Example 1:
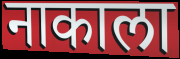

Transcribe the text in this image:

नाकाला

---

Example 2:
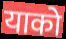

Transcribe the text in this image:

याको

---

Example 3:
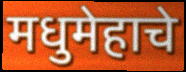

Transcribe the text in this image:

मधुमेहाचे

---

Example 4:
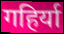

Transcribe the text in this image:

गहिर्या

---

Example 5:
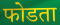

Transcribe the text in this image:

फोडता